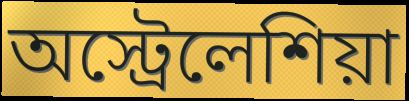
অস্ট্রেলেশিয়া